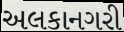
અલકાનગરી